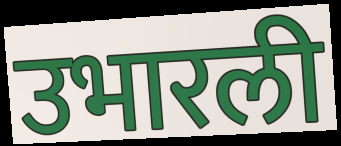
उभारली